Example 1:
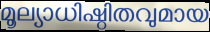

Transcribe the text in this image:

മൂല്യാധിഷ്ഠിതവുമായ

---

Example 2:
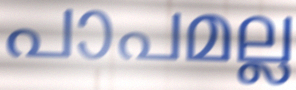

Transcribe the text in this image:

പാപമല്ല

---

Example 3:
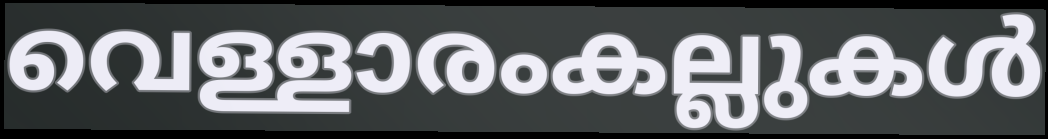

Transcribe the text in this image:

വെള്ളാരംകല്ലുകൾ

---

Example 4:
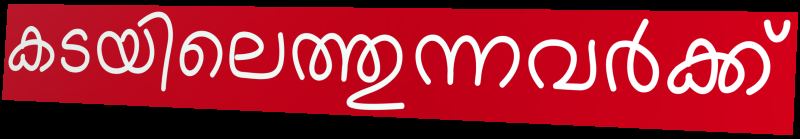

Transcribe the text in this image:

കടയിലെത്തുന്നവർക്ക്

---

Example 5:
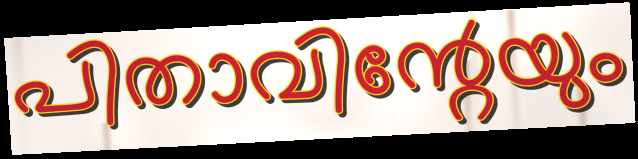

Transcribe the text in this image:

പിതാവിന്റേയും